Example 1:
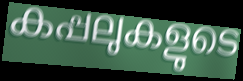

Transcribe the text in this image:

കപ്പലുകളുടെ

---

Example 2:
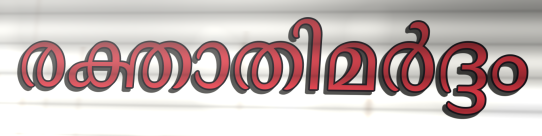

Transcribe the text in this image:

രക്താതിമർദ്ദം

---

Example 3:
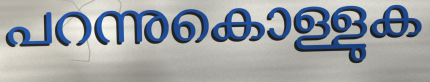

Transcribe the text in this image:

പറന്നുകൊള്ളുക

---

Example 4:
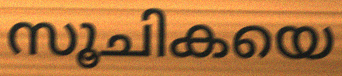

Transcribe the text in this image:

സൂചികയെ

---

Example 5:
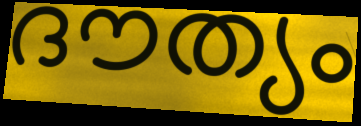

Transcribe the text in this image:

ദൗത്യം